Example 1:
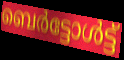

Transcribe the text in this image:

ബെർട്ടോൾട്ട്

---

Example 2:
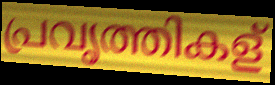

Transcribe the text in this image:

പ്രവൃത്തികള്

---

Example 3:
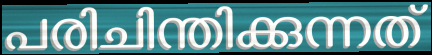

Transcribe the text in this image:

പരിചിന്തിക്കുന്നത്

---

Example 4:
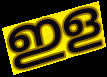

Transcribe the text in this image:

ഇള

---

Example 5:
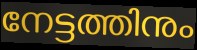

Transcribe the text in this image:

നേട്ടത്തിനും